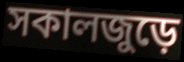
সকালজুড়ে